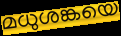
മധുശങ്കയെ